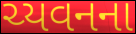
ચ્યવનના